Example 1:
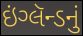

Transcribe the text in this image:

ઇંગ્લૅન્ડનું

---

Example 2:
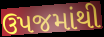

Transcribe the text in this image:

ઉપજમાંથી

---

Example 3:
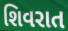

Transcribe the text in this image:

શિવરાત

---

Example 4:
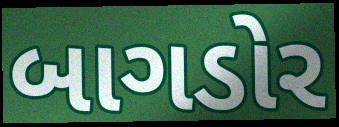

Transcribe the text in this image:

બાગડોર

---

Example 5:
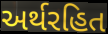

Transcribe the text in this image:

અર્થરહિત